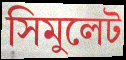
সিমুলেট